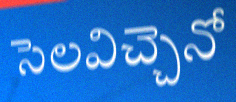
సెలవిచ్చెనో